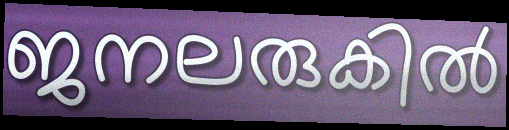
ജനലരുകിൽ